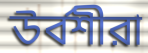
উর্বশীরা